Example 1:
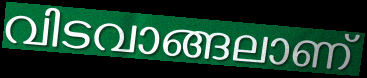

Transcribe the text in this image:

വിടവാങ്ങലാണ്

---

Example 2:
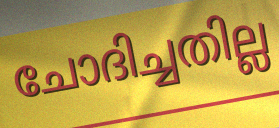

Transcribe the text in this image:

ചോദിച്ചതില്ല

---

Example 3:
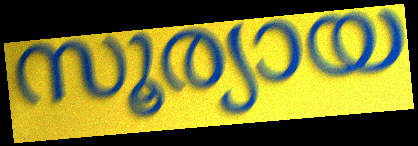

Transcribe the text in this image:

സൂര്യായ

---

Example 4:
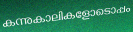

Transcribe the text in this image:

കന്നുകാലികളോടൊപ്പം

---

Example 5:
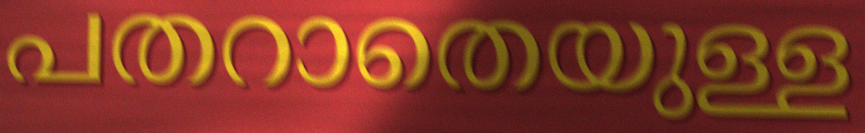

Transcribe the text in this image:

പതറാതെയുള്ള